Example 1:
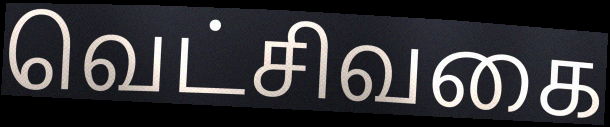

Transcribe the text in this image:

வெட்சிவகை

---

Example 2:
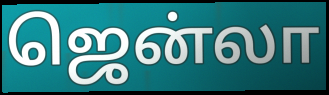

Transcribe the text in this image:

ஜென்லா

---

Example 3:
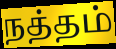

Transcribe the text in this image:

நத்தம்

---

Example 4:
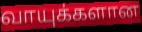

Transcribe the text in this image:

வாயுக்களான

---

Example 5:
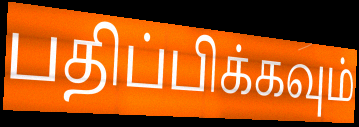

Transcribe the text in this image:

பதிப்பிக்கவும்